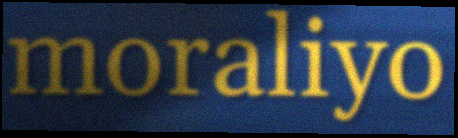
moraliyo